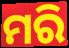
ମରି